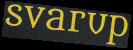
svarup